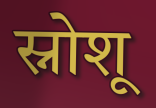
स्नोशू